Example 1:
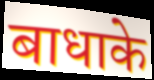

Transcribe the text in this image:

बाधाके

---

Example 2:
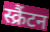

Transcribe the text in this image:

स्क्रैंटन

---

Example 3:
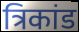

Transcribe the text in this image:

त्रिकांड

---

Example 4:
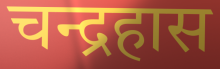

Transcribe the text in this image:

चन्द्रहास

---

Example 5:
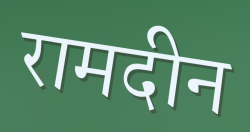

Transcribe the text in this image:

रामदीन